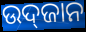
ଉଦ୍‌ଜାନ